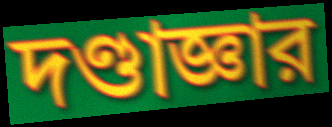
দণ্ডাজ্ঞার